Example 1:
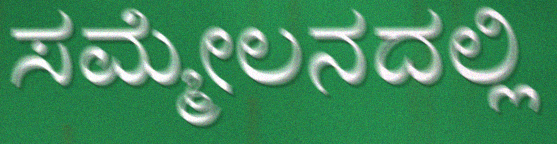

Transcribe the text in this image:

ಸಮ್ಮೇಲನದಲ್ಲಿ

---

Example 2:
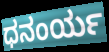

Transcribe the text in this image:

ಧನಂರ್ಯ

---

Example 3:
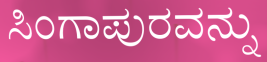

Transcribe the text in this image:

ಸಿಂಗಾಪುರವನ್ನು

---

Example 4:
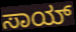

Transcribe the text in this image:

ಸಾಯ್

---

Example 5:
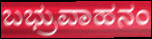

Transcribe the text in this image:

ಬಭ್ರುವಾಹನಂ